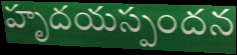
హృదయస్పందన